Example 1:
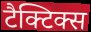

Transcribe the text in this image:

टैक्टिक्स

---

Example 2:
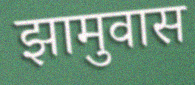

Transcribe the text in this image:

झामुवास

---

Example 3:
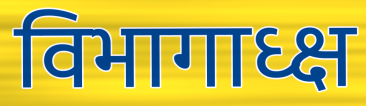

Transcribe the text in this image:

विभागाध्क्ष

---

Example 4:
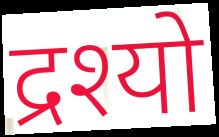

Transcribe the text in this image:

द्रश्यो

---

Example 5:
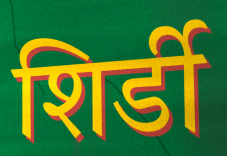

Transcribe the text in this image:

शिर्डी